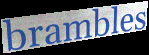
brambles